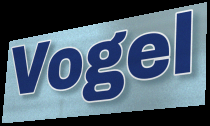
Vogel